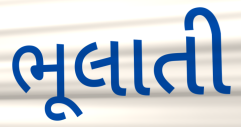
ભૂલાતી